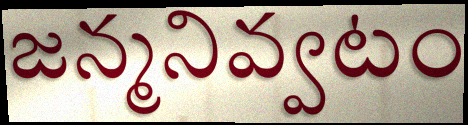
జన్మనివ్వటం